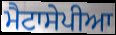
ਮੈਟਾਸੇਪੀਆ